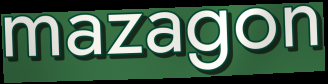
mazagon